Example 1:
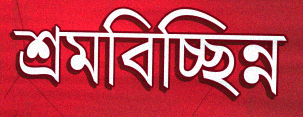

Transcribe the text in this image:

শ্রমবিচ্ছিন্ন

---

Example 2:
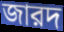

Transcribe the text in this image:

জারদ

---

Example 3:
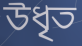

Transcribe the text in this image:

উধৃত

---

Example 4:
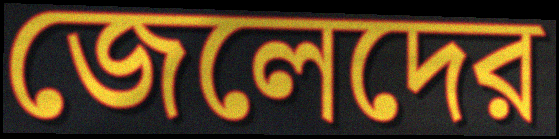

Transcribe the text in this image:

জেলেদের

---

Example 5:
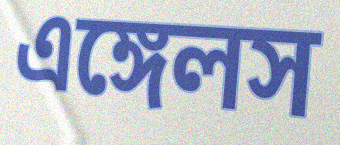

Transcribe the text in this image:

এঙ্গেলস